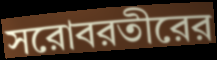
সরোবরতীরের